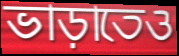
ভাড়াতেও